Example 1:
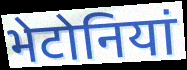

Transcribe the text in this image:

भेटोनियां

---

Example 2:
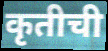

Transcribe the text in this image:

कृतीची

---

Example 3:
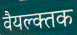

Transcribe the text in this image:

वैयल्क्तक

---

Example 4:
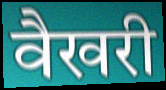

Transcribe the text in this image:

वैखरी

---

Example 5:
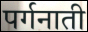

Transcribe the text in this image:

पर्गनाती